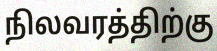
நிலவரத்திற்கு